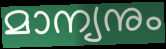
മാന്യനും